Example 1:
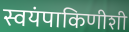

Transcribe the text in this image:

स्वयंपाकिणीशी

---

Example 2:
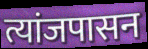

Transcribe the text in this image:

त्यांजपासन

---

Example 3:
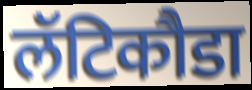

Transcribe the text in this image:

लॅटिकौडा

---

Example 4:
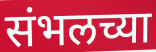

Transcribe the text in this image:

संभलच्या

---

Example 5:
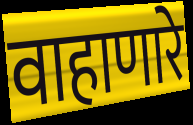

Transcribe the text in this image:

वाहाणारे